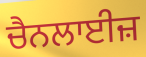
ਚੈਨਲਾਈਜ਼